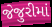
જેજુરીમાં